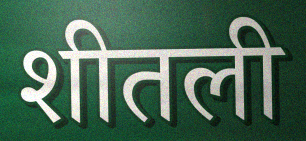
शीतली